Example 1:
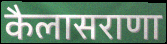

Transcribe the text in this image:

कैलासराणा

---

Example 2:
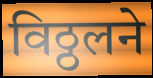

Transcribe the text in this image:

विठ्ठलने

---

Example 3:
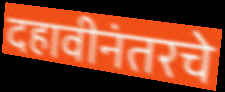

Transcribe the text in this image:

दहावीनंतरचे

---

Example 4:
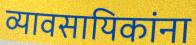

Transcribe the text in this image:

व्यावसायिकांना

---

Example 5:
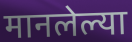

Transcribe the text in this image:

मानलेल्या